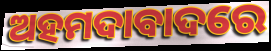
ଅହମଦାବାଦରେ